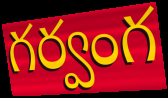
గర్వంగ